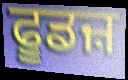
ਫੂਡਜ਼